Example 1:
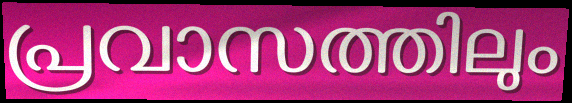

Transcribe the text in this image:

പ്രവാസത്തിലും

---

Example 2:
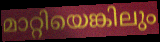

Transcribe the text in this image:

മാറ്റിയെങ്കിലും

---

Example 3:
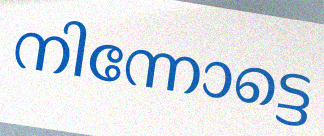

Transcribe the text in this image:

നിന്നോട്ടെ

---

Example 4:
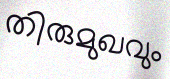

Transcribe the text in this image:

തിരുമുഖവും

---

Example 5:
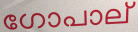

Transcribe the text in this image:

ഗോപാല്